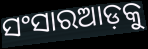
ସଂସାରଆଡ଼କୁ